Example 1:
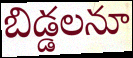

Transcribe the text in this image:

బిడ్డలనూ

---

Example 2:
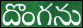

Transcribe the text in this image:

దొంగను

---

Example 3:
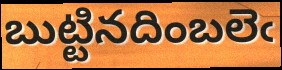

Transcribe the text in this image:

బుట్టినదింబలెఁ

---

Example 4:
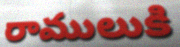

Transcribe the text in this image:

రాములుకి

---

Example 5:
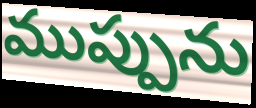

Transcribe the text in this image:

ముప్పును